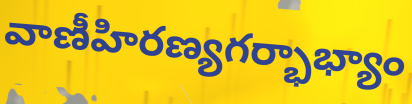
వాణీహిరణ్యగర్భాభ్యాం